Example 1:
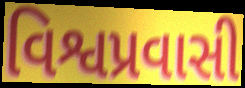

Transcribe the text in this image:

વિશ્વપ્રવાસી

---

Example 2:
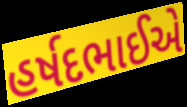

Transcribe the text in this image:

હર્ષદભાઈએ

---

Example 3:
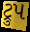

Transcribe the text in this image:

ટ્રુપ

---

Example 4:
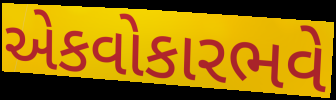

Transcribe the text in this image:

એકવોકારભવે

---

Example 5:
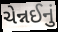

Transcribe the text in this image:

ચેન્નઈનું